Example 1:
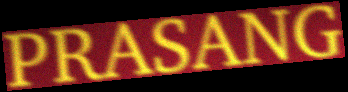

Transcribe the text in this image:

PRASANG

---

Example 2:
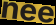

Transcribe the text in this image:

nee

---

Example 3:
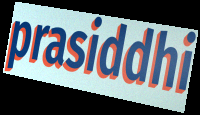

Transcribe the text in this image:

prasiddhi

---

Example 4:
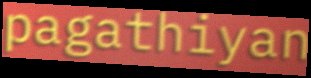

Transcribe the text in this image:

pagathiyan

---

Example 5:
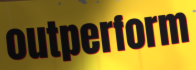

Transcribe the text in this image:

outperform